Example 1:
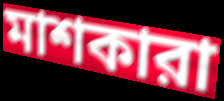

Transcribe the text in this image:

মাশকারা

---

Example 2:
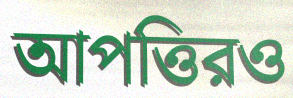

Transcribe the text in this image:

আপত্তিরও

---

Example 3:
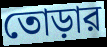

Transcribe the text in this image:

তোড়ার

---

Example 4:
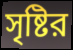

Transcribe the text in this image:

সৃষ্টির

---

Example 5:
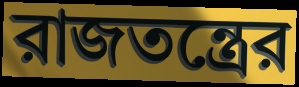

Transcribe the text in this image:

রাজতন্ত্রের